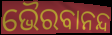
ଭୈରବାନନ୍ଦ